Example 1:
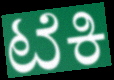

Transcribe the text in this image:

ಟೆಕಿ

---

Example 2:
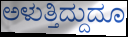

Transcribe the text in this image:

ಅಳುತ್ತಿದ್ದುದೂ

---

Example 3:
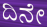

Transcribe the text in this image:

ದಿನೇ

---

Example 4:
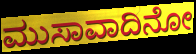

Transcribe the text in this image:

ಮುಸಾವಾದಿನೋ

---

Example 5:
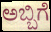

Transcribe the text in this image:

ಅಬ್ಬಿಗೆ